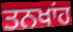
ਤਨਖਾਂਹ